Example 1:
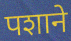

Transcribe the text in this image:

पशाने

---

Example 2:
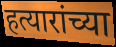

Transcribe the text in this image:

हत्यारांच्या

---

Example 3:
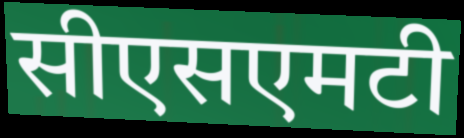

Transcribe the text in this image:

सीएसएमटी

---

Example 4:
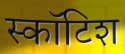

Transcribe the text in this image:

स्कॉटिश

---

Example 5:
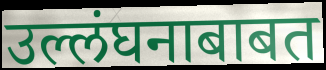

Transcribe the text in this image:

उल्लंघनाबाबत